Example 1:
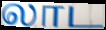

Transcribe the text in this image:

லாட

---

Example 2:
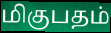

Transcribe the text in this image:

மிகுபதம்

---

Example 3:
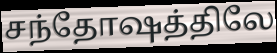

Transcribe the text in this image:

சந்தோஷத்திலே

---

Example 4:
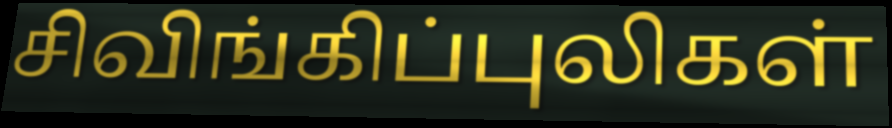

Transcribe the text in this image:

சிவிங்கிப்புலிகள்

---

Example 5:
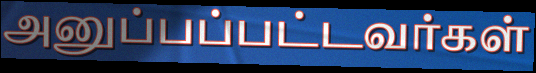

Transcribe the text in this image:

அனுப்பப்பட்டவர்கள்